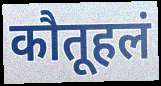
कौतूहलं